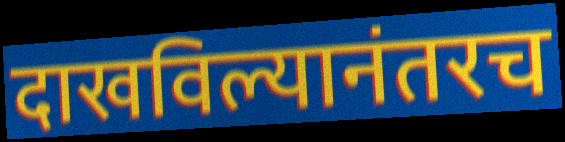
दाखविल्यानंतरच